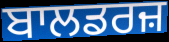
ਬਾਲਡਰਜ਼